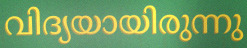
വിദ്യയായിരുന്നു